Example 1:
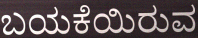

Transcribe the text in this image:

ಬಯಕೆಯಿರುವ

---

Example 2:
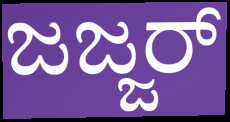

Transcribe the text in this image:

ಜಜ್ಜರ್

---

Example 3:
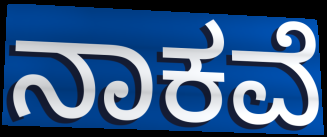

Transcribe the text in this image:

ನಾಕವೆ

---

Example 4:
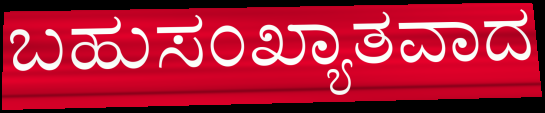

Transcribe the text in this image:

ಬಹುಸಂಖ್ಯಾತವಾದ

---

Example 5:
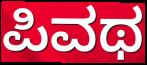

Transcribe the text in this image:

ಪಿವಥ